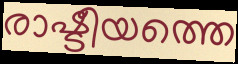
രാഷ്ടീയത്തെ